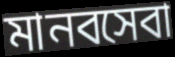
মানবসেবা